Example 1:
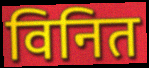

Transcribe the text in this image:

विनित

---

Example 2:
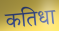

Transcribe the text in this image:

कतिधा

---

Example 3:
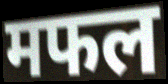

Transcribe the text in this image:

मफल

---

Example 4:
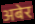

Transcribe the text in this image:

अबेर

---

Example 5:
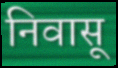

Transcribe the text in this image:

निवासू